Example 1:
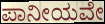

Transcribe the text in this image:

ಪಾನೀಯವೇ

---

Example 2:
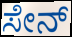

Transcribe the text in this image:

ಸೇನ್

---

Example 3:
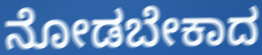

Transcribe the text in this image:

ನೋಡಬೇಕಾದ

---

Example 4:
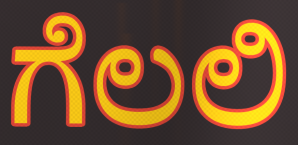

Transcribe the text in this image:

ಗೆಲಲಿ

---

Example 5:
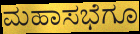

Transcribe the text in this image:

ಮಹಾಸಭೆಗೂ